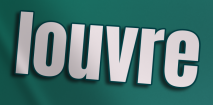
louvre